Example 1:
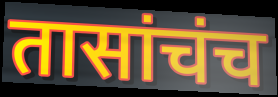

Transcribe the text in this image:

तासांचंच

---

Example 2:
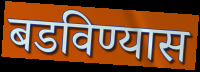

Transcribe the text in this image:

बडविण्यास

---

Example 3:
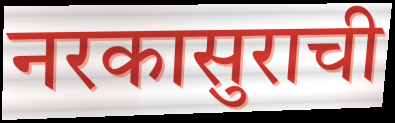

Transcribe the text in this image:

नरकासुराची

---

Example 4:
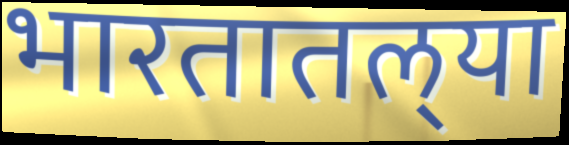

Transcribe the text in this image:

भारतातल्या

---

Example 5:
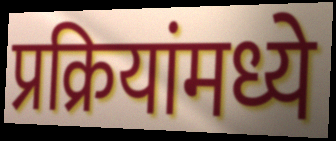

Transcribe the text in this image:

प्रक्रियांमध्ये